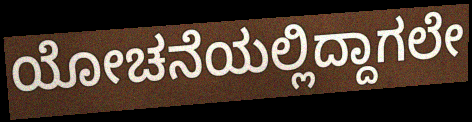
ಯೋಚನೆಯಲ್ಲಿದ್ದಾಗಲೇ